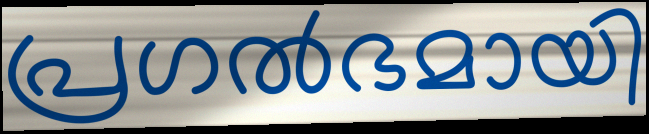
പ്രഗൽഭമായി